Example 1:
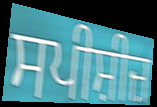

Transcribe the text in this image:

ਸਪੀਸ਼ੀਜ਼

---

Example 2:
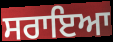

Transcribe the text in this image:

ਸਰਾਇਆ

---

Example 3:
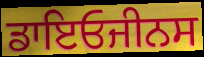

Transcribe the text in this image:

ਡਾਇਓਜੀਨਸ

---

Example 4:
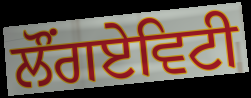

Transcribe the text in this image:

ਲੌਂਗਏਵਿਟੀ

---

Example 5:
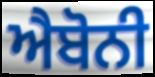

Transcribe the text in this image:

ਐਬੋਨੀ